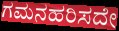
ಗಮನಹರಿಸದೇ